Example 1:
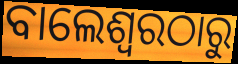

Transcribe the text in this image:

ବାଲେଶ୍ବରଠାରୁ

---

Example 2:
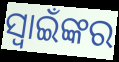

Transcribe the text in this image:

ସ୍ଵାଇଁଙ୍କର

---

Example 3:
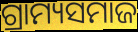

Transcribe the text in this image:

ଗ୍ରାମ୍ୟସମାଜ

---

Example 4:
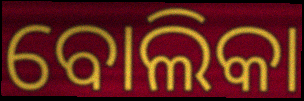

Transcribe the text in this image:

ବୋଲିକା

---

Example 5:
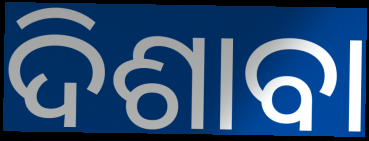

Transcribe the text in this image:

ଦିଶାବା